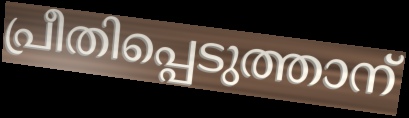
പ്രീതിപ്പെടുത്താന്